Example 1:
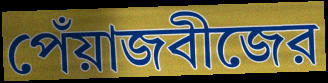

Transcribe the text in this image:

পেঁয়াজবীজের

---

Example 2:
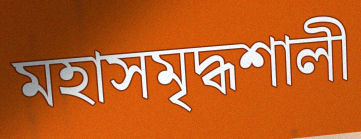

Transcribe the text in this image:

মহাসমৃদ্ধশালী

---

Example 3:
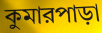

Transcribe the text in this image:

কুমারপাড়া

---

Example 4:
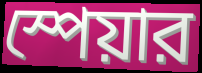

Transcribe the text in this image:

স্পেয়ার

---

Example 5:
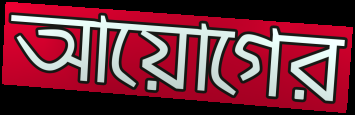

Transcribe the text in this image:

আয়োগের